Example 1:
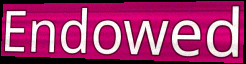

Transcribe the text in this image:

Endowed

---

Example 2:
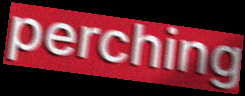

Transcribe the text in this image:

perching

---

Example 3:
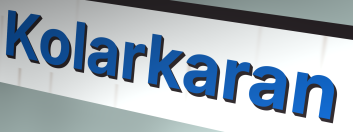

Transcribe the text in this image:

Kolarkaran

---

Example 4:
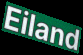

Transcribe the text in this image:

Eiland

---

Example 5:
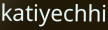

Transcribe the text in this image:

katiyechhi